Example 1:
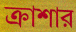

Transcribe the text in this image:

ক্রাশার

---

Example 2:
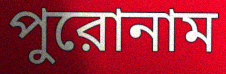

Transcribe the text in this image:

পুরোনাম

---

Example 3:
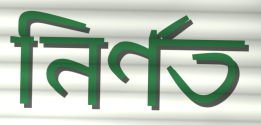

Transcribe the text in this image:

নির্ণত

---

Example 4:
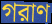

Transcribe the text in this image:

গরাণ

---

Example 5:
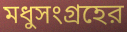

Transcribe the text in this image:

মধুসংগ্রহের